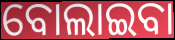
ବୋଲାଇବା